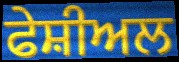
ਫੇਸ਼ੀਅਲ